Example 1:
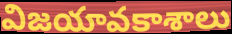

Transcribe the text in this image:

విజయావకాశాలు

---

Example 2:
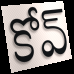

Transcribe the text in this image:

కోవ్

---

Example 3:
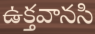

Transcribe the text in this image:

ఉక్తవానసి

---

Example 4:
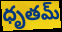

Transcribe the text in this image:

ధృతమ్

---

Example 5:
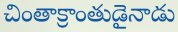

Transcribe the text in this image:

చింతాక్రాంతుడైనాడు